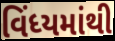
વિંધ્યમાંથી